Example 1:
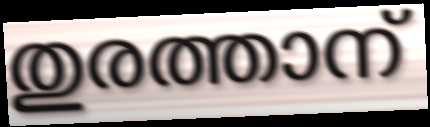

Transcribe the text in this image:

തുരത്താന്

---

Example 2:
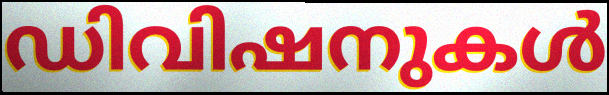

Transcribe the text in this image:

ഡിവിഷനുകൾ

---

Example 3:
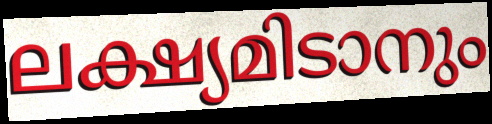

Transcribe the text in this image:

ലക്ഷ്യമിടാനും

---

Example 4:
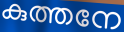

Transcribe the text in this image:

കുത്തനേ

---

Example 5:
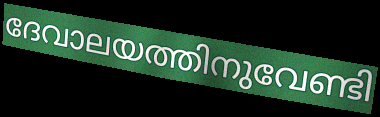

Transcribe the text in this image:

ദേവാലയത്തിനുവേണ്ടി